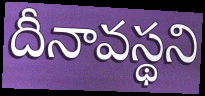
దీనావస్థని